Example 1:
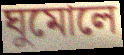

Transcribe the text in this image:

ঘুমোলে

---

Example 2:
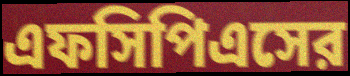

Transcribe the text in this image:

এফসিপিএসের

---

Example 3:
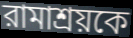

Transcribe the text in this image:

রামাশ্রয়কে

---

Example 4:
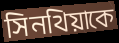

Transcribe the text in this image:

সিনথিয়াকে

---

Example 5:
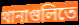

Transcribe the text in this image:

থানাগুলিতে